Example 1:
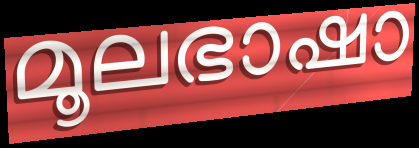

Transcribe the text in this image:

മൂലഭാഷാ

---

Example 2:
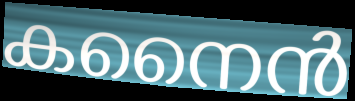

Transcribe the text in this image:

കനൈൻ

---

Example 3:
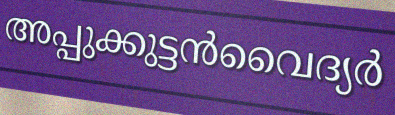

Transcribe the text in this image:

അപ്പുക്കുട്ടൻവൈദ്യർ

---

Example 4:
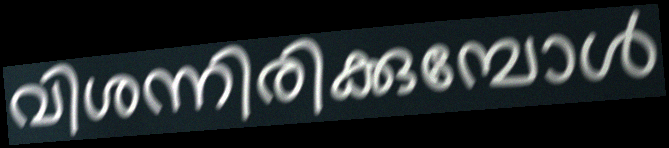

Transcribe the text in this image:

വിശന്നിരിക്കുമ്പോൾ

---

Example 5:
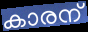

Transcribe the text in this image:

കാരന്